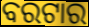
ବରଟାର